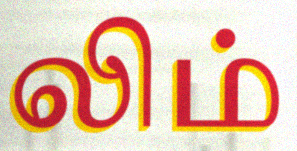
லிம்